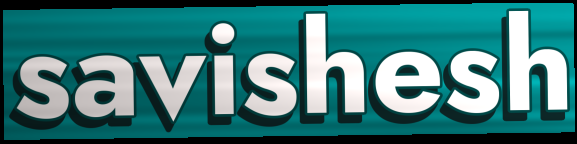
savishesh